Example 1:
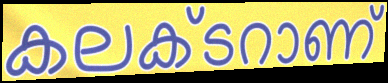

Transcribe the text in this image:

കലക്ടറാണ്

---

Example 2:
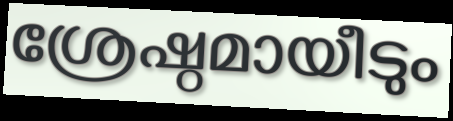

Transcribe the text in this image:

ശ്രേഷ്ഠമായീടും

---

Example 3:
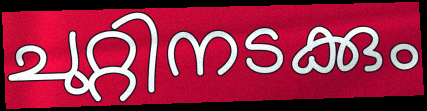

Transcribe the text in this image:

ചുറ്റിനടക്കും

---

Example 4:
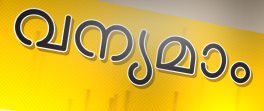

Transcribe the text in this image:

വന്യമാം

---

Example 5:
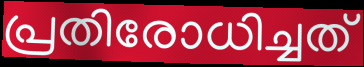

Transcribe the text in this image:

പ്രതിരോധിച്ചത്